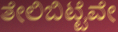
ತೇಲಿಬಿಟ್ಟೆವೇ